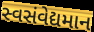
સ્વસંવેદ્યમાન